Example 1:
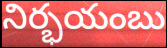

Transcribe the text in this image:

నిర్భయంబు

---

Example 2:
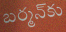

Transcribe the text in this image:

బర్మన్‌కు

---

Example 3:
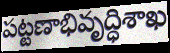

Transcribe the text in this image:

పట్టణాభివృద్ధిశాఖ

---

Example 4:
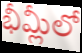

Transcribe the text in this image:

భీమ్లీలో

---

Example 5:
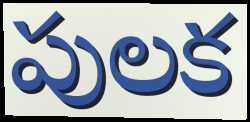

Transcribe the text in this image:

పులక